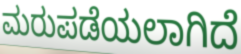
ಮರುಪಡೆಯಲಾಗಿದೆ